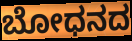
ಬೋಧನದ